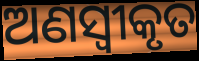
ଅଣସ୍ୱୀକୃତ